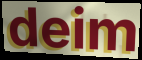
deim